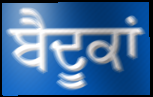
ਬੈਦੂਕਾਂ